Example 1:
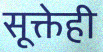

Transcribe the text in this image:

सूक्तेही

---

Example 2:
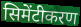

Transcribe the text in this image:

सिमेंटीकरण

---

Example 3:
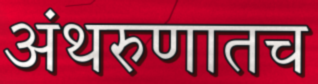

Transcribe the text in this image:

अंथरुणातच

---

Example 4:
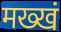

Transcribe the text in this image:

मख्खं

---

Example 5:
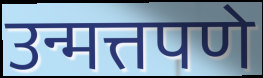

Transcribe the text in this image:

उन्मत्तपणे